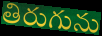
తిరుగును